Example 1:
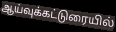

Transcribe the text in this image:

ஆய்வுக்கட்டுரையில்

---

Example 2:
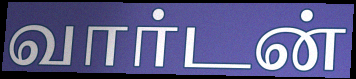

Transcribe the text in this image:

வார்டன்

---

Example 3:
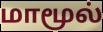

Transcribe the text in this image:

மாமூல்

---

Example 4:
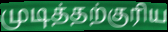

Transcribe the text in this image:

முடித்தற்குரிய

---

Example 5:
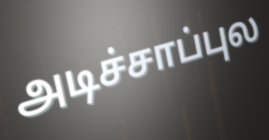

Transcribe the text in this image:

அடிச்சாப்புல